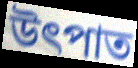
উৎপাত